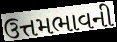
ઉત્તમભાવની